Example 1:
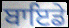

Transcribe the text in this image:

ਬਾਇਡੇ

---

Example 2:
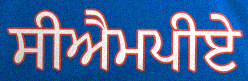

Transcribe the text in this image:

ਸੀਐਮਪੀਏ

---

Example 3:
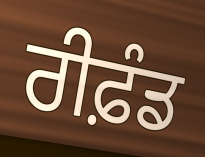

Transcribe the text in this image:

ਰੀਫ਼ੰਡ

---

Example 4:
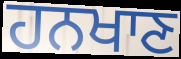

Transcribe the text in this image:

ਹਨਖਾਣ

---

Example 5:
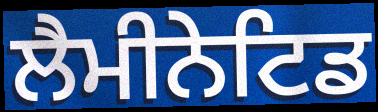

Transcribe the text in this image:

ਲੈਮੀਨੇਟਿਡ